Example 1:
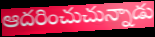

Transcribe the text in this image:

ఆదరించుచున్నాడు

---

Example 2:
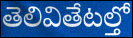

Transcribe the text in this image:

తెలివితేటల్తో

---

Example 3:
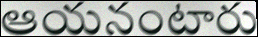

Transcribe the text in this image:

ఆయనంటారు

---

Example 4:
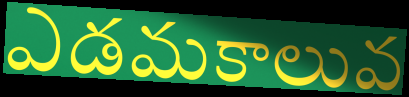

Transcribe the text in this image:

ఎడమకాలువ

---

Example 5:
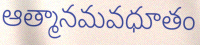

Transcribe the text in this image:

ఆత్మానమవధూతం